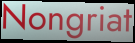
Nongriat